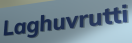
Laghuvrutti